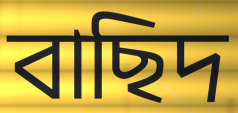
বাছিদ